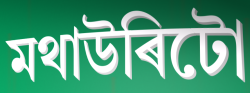
মথাউৰিটো